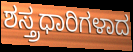
ಶಸ್ತ್ರಧಾರಿಗಳಾದ